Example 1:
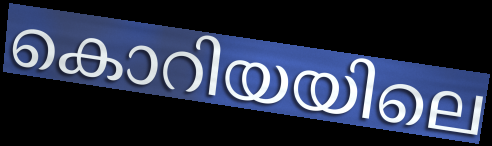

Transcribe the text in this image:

കൊറിയയിലെ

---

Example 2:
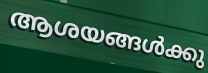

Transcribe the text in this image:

ആശയങ്ങൾക്കു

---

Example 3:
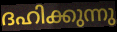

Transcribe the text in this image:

ദഹിക്കുന്നു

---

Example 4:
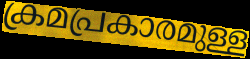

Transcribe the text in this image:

ക്രമപ്രകാരമുള്ള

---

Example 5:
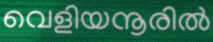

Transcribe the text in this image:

വെളിയനൂരിൽ